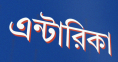
এন্টারিকা